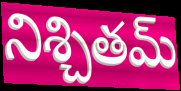
నిశ్చితమ్